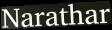
Narathar